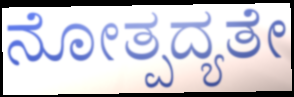
ನೋತ್ಪದ್ಯತೇ